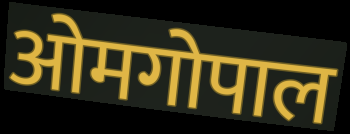
ओमगोपाल